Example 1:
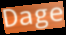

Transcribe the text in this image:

Dage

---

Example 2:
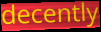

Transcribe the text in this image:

decently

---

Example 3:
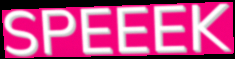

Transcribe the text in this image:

SPEEEK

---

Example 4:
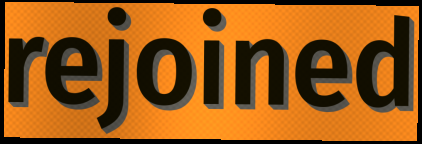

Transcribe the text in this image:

rejoined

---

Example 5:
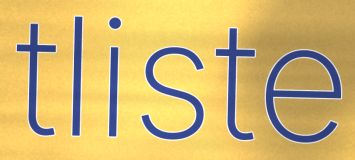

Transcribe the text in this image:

tliste